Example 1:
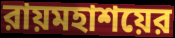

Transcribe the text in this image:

রায়মহাশয়ের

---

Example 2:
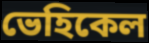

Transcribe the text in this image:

ভেহিকেল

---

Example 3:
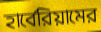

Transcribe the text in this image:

হার্বেরিয়ামের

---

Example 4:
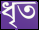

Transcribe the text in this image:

ধৃত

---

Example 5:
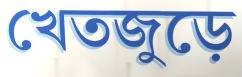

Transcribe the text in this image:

খেতজুড়ে